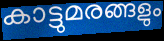
കാട്ടുമരങ്ങളും